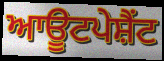
ਆਊਟਪੇਸ਼ੈਂਟ